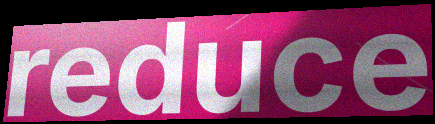
reduce